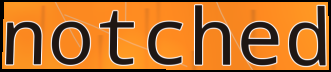
notched